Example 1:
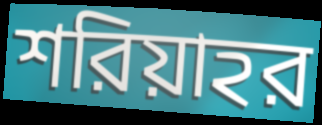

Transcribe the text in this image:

শরিয়াহর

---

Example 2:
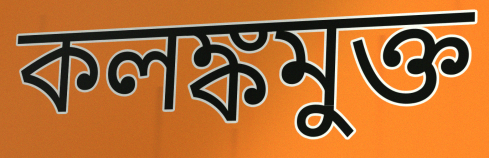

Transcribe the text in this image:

কলঙ্কমুক্ত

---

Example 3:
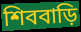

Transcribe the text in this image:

শিববাড়ি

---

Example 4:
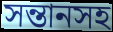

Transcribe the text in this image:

সন্তানসহ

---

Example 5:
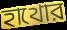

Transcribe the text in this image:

হাথোর